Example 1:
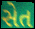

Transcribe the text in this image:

સેત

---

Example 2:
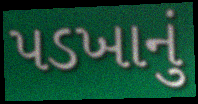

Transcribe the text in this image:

પડખાનું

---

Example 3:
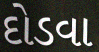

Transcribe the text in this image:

દોડવા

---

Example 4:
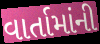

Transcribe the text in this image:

વાર્તામાંની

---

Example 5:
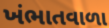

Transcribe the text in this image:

ખંભાતવાળા